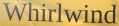
Whirlwind